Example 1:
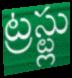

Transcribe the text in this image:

ట్రస్ట్లు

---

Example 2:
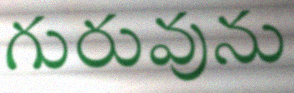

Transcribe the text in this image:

గురువును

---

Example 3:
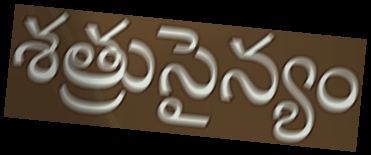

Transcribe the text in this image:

శత్రుసైన్యం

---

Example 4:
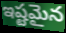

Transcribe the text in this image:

ఇష్టమైన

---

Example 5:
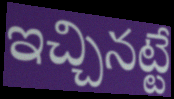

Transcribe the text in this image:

ఇచ్చినట్టే